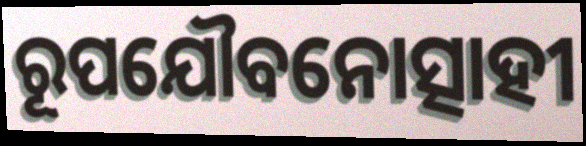
ରୂପଯୌବନୋତ୍ସାହୀ